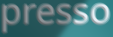
presso